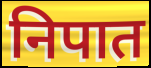
निपात